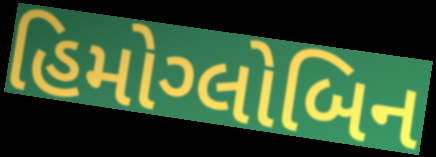
હિમોગ્લોબિન